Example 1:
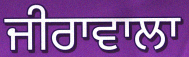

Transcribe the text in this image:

ਜੀਰਾਵਾਲਾ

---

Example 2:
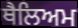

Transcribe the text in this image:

ਥੈਲਿਅਮ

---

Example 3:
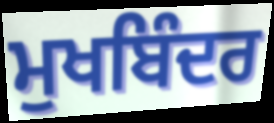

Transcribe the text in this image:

ਮੁਖਬਿੰਦਰ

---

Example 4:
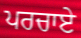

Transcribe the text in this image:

ਪਰਚਾਏ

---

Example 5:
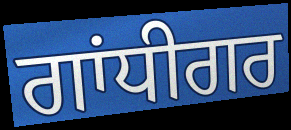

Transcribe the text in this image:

ਗਾਂਧੀਗਰ